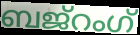
ബജ്റംഗ്